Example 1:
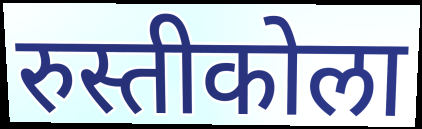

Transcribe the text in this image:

रुस्तीकोला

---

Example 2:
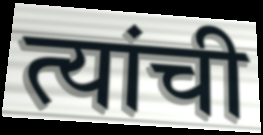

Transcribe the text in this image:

त्‍यांची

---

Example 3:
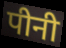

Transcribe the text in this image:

पीनी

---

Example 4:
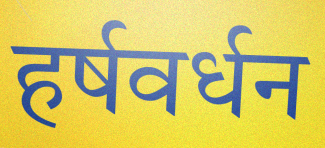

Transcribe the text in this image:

हर्षवर्धन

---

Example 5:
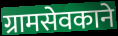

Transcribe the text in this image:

ग्रामसेवकाने